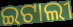
ଇଟାଲୀ